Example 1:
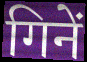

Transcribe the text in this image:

गिनें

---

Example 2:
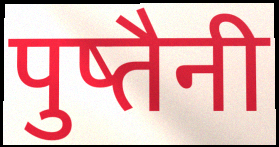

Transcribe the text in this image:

पुष्तैनी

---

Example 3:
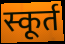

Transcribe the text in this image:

स्कूर्त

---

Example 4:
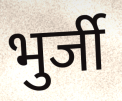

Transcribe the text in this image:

भुर्जी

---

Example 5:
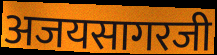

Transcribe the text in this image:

अजयसागरजी